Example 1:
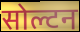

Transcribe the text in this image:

सोल्टन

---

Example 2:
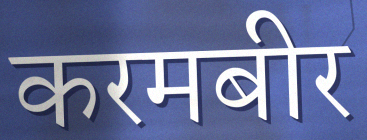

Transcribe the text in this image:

करमबीर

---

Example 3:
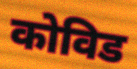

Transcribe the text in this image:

कोविड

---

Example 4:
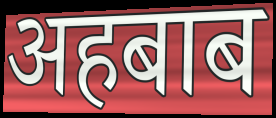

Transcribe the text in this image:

अहबाब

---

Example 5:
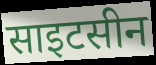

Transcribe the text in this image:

साइटसीन